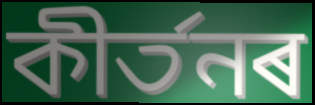
কীৰ্তনৰ